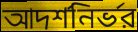
আদর্শনির্ভর